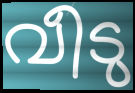
വീടു